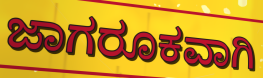
ಜಾಗರೂಕವಾಗಿ